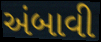
અંબાવી